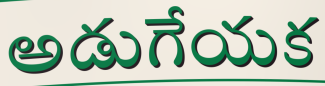
అడుగేయక